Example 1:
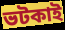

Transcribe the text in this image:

ভটকাই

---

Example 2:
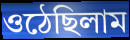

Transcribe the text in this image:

ওঠেছিলাম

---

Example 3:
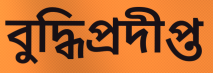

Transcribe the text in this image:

বুদ্ধিপ্রদীপ্ত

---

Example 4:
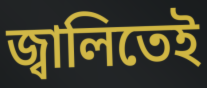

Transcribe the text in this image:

জ্বালিতেই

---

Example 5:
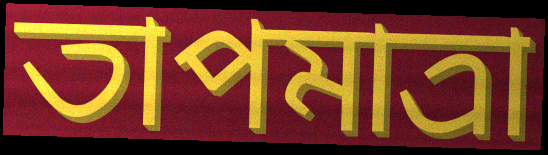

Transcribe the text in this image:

তাপমাত্রা